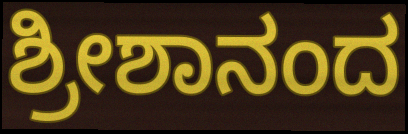
ಶ್ರೀಶಾನಂದ